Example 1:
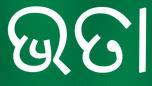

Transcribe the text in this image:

ଭତା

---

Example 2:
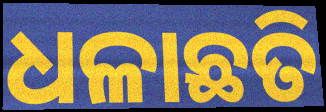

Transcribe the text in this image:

ଧଳାଛତି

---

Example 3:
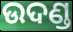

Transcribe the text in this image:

ଉଦଣ୍ଡ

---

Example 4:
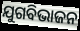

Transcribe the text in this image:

ଯୁଗବିଭାଜନ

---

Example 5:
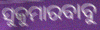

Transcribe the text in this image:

ସୁକୁମାରବାବୁ